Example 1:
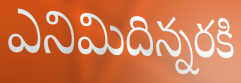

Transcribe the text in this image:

ఎనిమిదిన్నరకి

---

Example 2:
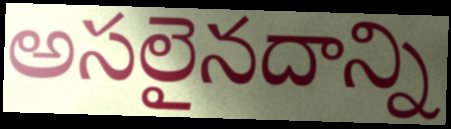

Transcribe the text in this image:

అసలైనదాన్ని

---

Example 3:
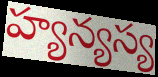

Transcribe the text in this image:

హ్యన్యస్య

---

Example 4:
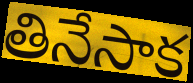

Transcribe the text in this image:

తినేసాక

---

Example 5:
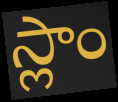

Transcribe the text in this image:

స్లాం